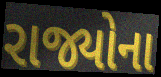
રાજ્યોના